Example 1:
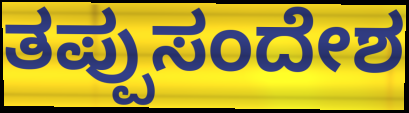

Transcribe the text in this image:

ತಪ್ಪುಸಂದೇಶ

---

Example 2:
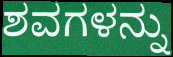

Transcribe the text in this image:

ಶವಗಳನ್ನು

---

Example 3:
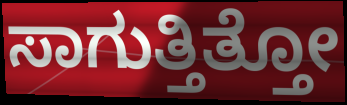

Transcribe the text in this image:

ಸಾಗುತ್ತಿತ್ತೋ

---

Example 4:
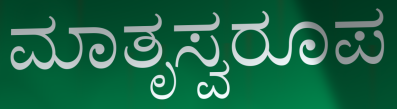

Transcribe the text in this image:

ಮಾತೃಸ್ವರೂಪ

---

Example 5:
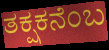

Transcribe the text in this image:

ತಕ್ಷಕನೆಂಬ